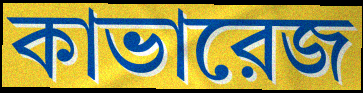
কাভারেজ